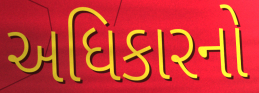
અધિકારનો